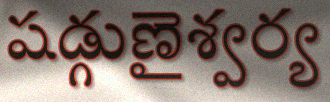
షడ్గుణైశ్వర్య